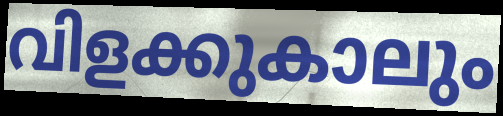
വിളക്കുകാലും